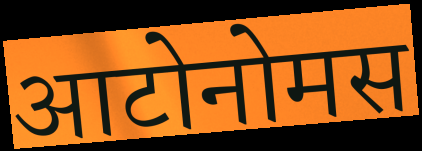
आटोनोमस